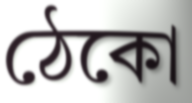
ঠেকো